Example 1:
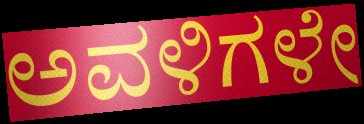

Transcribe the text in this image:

ಅವಳಿಗಳೇ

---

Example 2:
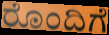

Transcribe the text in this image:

ರೊಂದಿಗೆ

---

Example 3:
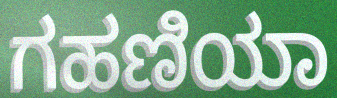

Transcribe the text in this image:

ಗಹಣಿಯಾ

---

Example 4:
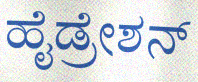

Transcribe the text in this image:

ಹೈಡ್ರೇಶನ್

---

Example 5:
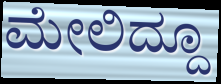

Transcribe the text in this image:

ಮೇಲಿದ್ದೂ